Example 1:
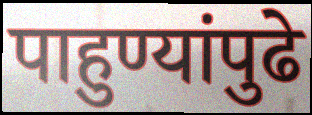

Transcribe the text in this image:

पाहुण्यांपुढे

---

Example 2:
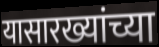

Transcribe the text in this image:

यासारख्यांच्या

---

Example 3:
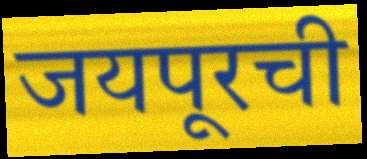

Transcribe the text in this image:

जयपूरची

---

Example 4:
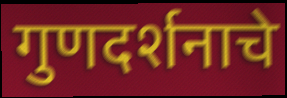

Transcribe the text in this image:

गुणदर्शनाचे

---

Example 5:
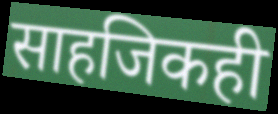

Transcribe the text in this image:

साहजिकही